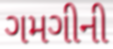
ગમગીની